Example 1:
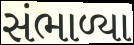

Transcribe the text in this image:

સંભાળ્યા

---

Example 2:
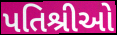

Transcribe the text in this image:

પતિશ્રીઓ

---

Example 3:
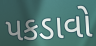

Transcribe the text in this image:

પકડાવો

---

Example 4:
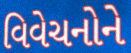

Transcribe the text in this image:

વિવેચનોને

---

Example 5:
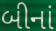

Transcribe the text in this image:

બીનાં